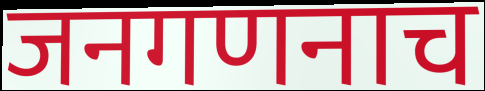
जनगणनाच